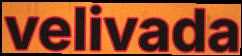
velivada